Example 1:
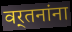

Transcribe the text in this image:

वर्तनांना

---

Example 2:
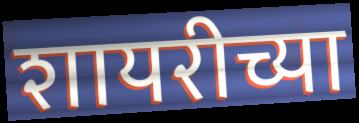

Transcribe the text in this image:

शायरीच्या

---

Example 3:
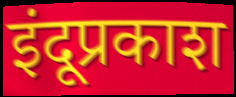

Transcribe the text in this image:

इंदूप्रकाश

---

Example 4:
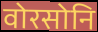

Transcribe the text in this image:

वोरसोनि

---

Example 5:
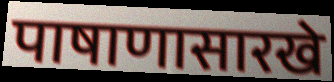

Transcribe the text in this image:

पाषाणासारखे